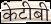
केटीबी